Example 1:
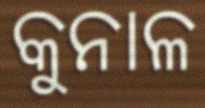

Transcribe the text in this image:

କୁନାଳ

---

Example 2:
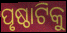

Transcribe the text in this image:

ପୃଷ୍ଠାଟିକୁ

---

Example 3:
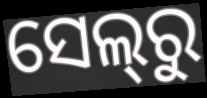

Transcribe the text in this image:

ସେଲ୍‌ରୁ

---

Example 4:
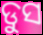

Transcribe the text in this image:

ଡୁସ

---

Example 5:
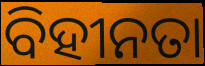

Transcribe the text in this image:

ବିହୀନତା